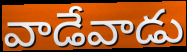
వాడేవాడు